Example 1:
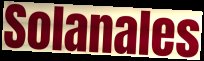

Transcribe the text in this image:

Solanales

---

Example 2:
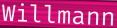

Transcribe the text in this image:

Willmann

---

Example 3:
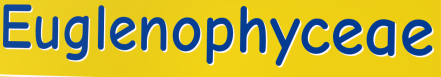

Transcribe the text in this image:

Euglenophyceae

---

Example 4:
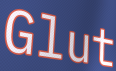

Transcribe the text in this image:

Glut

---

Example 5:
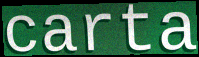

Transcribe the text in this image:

carta